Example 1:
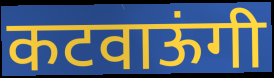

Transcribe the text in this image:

कटवाऊंगी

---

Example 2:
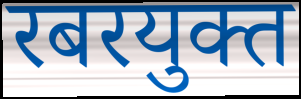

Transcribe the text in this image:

रबरयुक्त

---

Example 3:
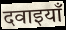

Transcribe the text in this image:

दवाइयाँ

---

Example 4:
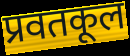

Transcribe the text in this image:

प्रवतकूल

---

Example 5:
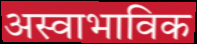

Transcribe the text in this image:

अस्वाभाविक